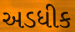
અડધીક